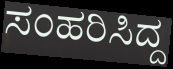
ಸಂಹರಿಸಿದ್ದ